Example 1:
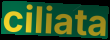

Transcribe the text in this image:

ciliata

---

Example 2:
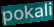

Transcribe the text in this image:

pokali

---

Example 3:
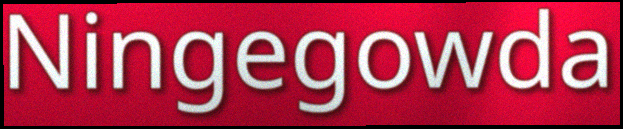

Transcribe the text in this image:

Ningegowda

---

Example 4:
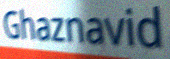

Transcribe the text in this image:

Ghaznavid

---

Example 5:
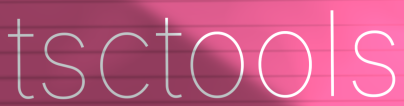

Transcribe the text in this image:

tsctools